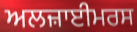
ਅਲਜ਼ਾਈਮਰਸ